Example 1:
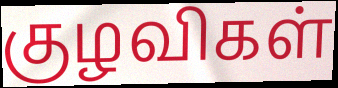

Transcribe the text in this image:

குழவிகள்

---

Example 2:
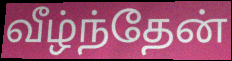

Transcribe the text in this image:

வீழ்ந்தேன்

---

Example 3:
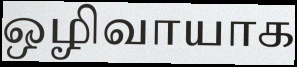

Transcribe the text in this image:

ஒழிவாயாக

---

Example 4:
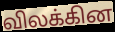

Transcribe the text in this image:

விலக்கின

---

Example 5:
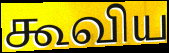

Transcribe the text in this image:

கூவிய